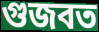
গুজবত